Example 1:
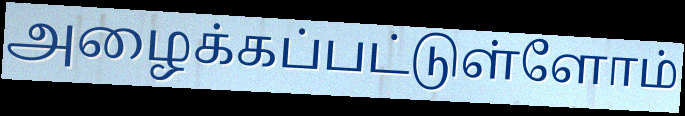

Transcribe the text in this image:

அழைக்கப்பட்டுள்ளோம்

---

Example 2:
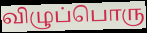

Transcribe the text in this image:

விழுப்பொரு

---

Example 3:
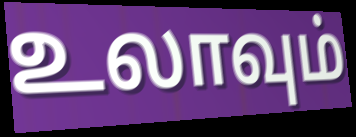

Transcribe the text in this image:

உலாவும்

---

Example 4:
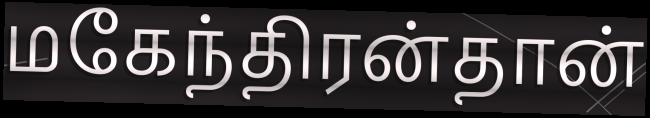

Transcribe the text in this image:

மகேந்திரன்தான்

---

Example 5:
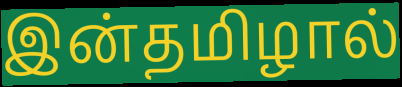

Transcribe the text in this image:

இன்தமிழால்